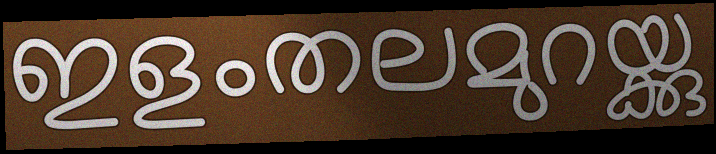
ഇളംതലമുറയ്ക്കു